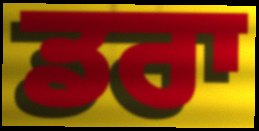
ਡਰਾ